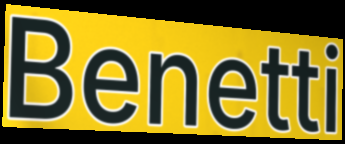
Benetti